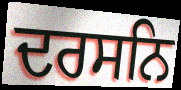
ਦਰਸਨਿ